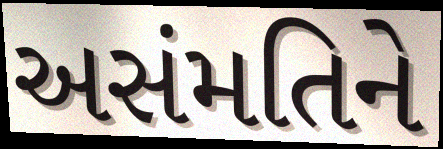
અસંમતિને